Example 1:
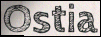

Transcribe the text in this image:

Ostia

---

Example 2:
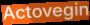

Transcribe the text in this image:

Actovegin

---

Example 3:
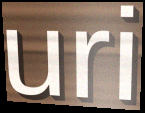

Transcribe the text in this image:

uri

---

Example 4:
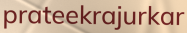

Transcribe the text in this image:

prateekrajurkar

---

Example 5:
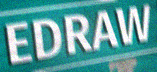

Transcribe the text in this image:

EDRAW